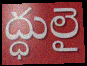
ద్ధులై